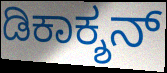
ಡಿಕಾಕ್ಶನ್